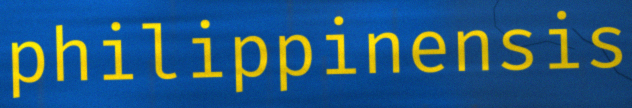
philippinensis